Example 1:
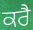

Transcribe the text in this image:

ਕਰੈ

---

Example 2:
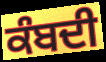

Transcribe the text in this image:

ਕੰਬਦੀ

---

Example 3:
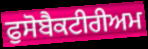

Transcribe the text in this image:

ਫੁਸੋਬੈਕਟੀਰੀਅਮ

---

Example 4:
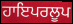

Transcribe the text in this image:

ਹਾਇਪਰਲੂਪ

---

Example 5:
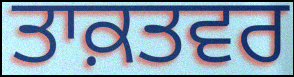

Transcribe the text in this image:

ਤਾਕ਼ਤਵਰ